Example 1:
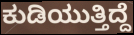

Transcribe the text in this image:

ಕುಡಿಯುತ್ತಿದ್ದೆ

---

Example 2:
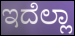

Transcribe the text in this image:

ಇದೆಲ್ಲಾ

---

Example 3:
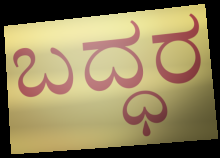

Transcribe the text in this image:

ಬದ್ಧರ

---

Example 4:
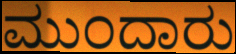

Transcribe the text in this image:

ಮುಂದಾರು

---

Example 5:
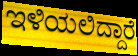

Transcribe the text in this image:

ಇಳಿಯಲಿದ್ದಾರೆ